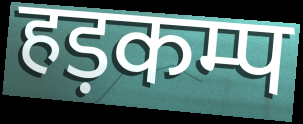
हड़कम्‍प